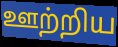
ஊற்றிய